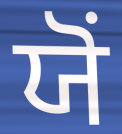
ਯੋਂ